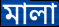
মালা